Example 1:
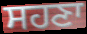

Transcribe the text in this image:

ਸਹਣਾ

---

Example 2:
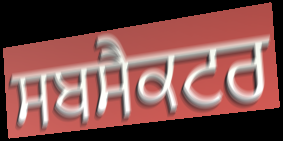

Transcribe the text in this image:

ਸਬਸੈਕਟਰ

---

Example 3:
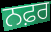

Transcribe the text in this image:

ਨਫ਼ਰ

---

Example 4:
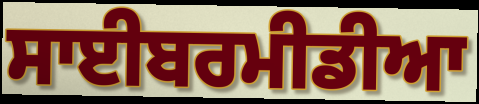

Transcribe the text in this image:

ਸਾਈਬਰਮੀਡੀਆ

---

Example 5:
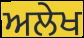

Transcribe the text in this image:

ਅਲੇਖ